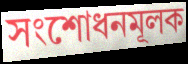
সংশোধনমূলক